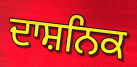
ਦਾਸ਼ਨਿਕ